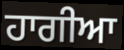
ਹਾਗੀਆ